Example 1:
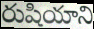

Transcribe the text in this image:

రుషియాని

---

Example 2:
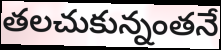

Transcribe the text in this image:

తలచుకున్నంతనే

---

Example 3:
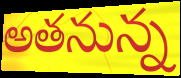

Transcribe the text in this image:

అతనున్న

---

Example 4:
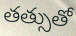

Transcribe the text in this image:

తత్సుతో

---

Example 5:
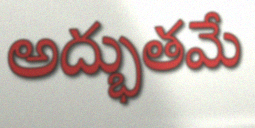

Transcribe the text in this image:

అద్భుతమే